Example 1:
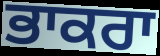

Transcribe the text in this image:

ਭਾਕਰਾ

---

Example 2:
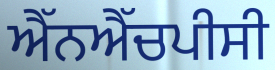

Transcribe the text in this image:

ਐੱਨਐੱਚਪੀਸੀ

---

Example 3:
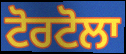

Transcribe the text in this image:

ਟੋਰਟੋਲਾ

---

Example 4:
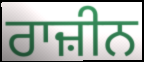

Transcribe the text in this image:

ਰਾਜ਼ੀਨ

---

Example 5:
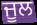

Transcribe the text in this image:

ਜੂਲ